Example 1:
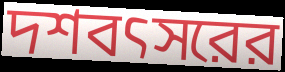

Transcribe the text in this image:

দশবৎসরের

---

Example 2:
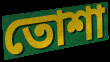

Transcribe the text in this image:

তোশা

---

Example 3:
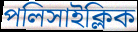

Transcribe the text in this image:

পলিসাইক্লিক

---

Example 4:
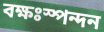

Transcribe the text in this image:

বক্ষঃস্পন্দন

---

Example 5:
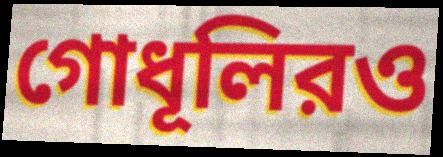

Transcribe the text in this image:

গোধূলিরও